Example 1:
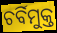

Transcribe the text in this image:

ଚର୍ବିମୁକ୍ତ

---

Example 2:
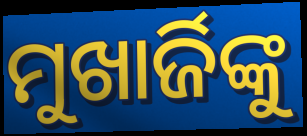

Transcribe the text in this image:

ମୁଖାର୍ଜିଙ୍କୁ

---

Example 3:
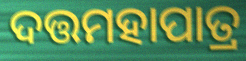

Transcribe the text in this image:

ଦତ୍ତମହାପାତ୍ର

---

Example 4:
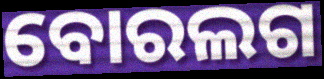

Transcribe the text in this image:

ବୋରଲଗ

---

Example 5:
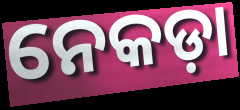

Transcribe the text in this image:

ନେକଡ଼ା